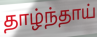
தாழ்ந்தாய்